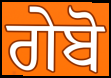
ਗੇਬੋ